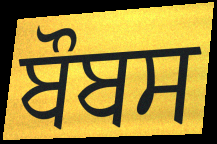
ਬੌਬਸ